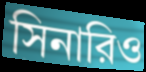
সিনারিও